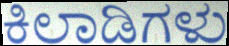
ಕಿಲಾಡಿಗಳು